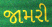
જામરી